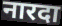
नारदा